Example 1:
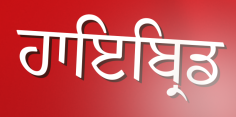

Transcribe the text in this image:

ਹਾਇਬ੍ਰਿਡ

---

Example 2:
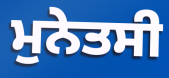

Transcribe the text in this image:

ਮੁਨੇਤਸੀ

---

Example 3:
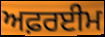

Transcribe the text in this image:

ਅਫ਼ਰਈਮ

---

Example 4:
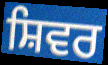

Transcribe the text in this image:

ਸ਼ਿਵਰ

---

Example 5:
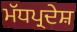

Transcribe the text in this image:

ਮੱਧਪ੍ਰਦੇਸ਼